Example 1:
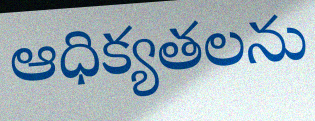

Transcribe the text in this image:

ఆధిక్యతలను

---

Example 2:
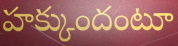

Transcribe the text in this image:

హక్కుందంటూ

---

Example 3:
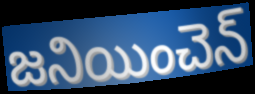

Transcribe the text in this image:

జనియించెన్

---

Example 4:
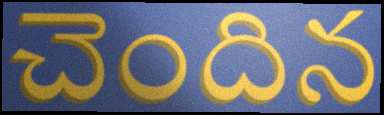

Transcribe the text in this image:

చెందిన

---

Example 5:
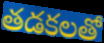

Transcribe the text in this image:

తడకలతో